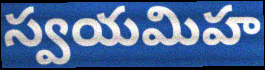
స్వయమిహ